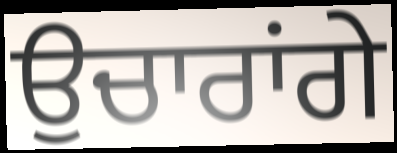
ਉਚਾਰਾਂਗੇ